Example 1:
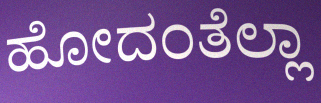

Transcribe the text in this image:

ಹೋದಂತೆಲ್ಲಾ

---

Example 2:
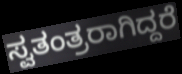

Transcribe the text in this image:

ಸ್ವತಂತ್ರರಾಗಿದ್ದರೆ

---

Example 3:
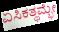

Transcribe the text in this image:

ಏಸಿಕತ್ಥಮ್ಭೇ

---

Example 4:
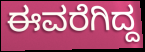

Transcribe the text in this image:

ಈವರೆಗಿದ್ದ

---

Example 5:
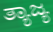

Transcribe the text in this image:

ತ್ಯಾಜ್ಯ